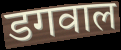
डगवाल